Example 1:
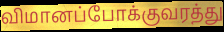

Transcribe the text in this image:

விமானப்போக்குவரத்து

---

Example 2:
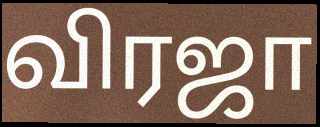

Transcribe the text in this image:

விரஜா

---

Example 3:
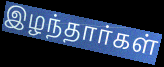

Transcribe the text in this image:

இழந்தார்கள்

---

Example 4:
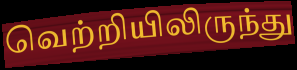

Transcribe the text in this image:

வெற்றியிலிருந்து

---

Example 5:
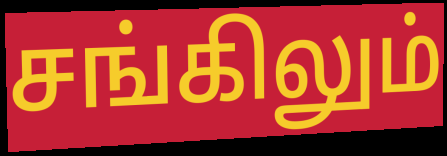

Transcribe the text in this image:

சங்கிலும்